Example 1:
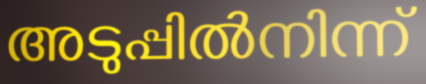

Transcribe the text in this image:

അടുപ്പിൽനിന്ന്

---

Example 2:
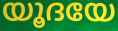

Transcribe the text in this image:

യൂദയേ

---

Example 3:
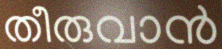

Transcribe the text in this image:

തീരുവാൻ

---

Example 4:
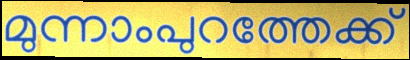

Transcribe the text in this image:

മുന്നാംപുറത്തേക്ക്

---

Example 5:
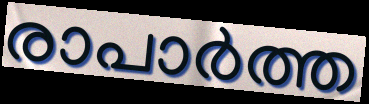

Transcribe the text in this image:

രാപാർത്ത